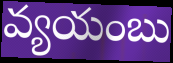
వ్యయంబు